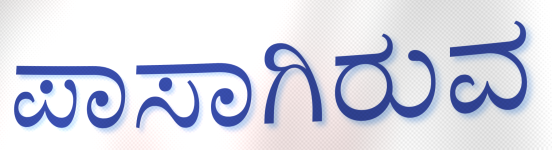
ಪಾಸಾಗಿರುವ